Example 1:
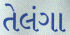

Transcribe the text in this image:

તેલંગા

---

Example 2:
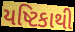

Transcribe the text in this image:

યષ્ટિકાથી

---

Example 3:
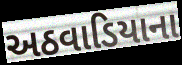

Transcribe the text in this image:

અઠવાડિયાના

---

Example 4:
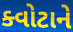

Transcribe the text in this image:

ક્વોટાને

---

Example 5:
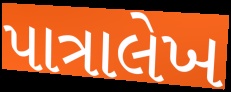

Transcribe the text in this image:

પાત્રાલેખ